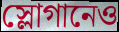
স্লোগানেও